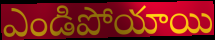
ఎండిపోయాయి